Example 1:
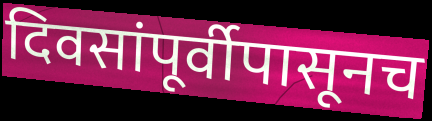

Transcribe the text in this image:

दिवसांपूर्वीपासूनच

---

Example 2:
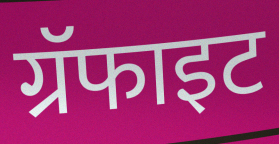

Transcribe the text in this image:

ग्रॅफाइट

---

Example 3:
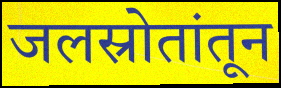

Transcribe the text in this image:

जलस्रोतांतून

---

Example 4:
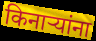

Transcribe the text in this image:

किनाऱ्यांना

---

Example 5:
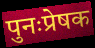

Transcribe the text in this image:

पुनःप्रेषक